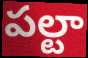
పల్టా